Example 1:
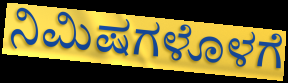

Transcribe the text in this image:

ನಿಮಿಷಗಳೊಳಗೆ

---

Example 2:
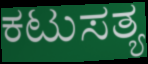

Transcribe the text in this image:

ಕಟುಸತ್ಯ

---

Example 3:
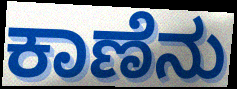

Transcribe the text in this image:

ಕಾಣೆನು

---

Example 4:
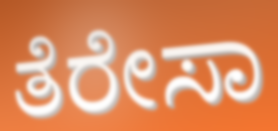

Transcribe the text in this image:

ತೆರೇಸಾ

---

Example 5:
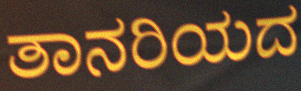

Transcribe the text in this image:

ತಾನರಿಯದ